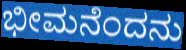
ಭೀಮನೆಂದನು